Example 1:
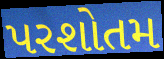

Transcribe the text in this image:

પરશોતમ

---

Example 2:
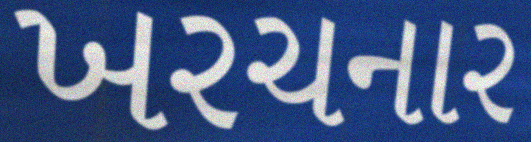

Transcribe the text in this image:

ખરચનાર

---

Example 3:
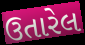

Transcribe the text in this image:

ઉતારેલ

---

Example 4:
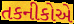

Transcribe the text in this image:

તકનીકોએ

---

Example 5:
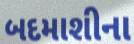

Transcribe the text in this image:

બદમાશીના